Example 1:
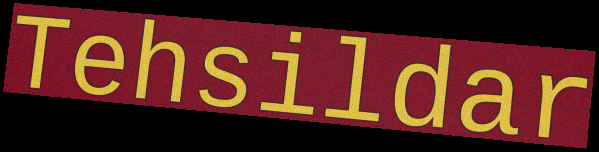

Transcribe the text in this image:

Tehsildar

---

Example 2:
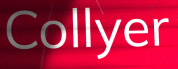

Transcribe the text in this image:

Collyer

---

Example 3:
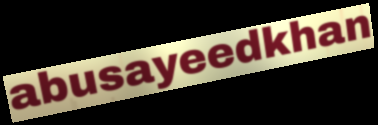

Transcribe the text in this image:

abusayeedkhan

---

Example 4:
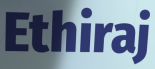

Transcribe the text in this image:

Ethiraj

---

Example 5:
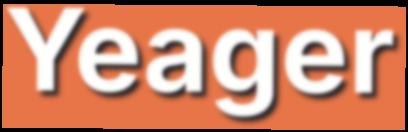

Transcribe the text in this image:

Yeager